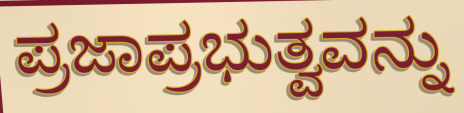
ಪ್ರಜಾಪ್ರಭುತ್ವವನ್ನು